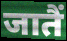
जातैं